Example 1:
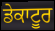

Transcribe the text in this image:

ਡੇਕਾਟੂਰ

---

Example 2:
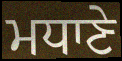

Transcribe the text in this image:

ਮਧਾਣੇ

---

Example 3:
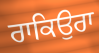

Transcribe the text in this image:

ਰਾਕਿਉਰਾ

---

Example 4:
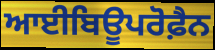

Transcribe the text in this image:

ਆਈਬਿਊਪਰੋਫ਼ੈਨ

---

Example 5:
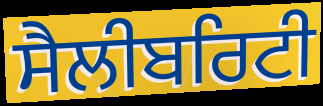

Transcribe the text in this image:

ਸੈਲੀਬਰਿਟੀ